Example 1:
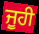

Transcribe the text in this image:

ਜੂਹੀ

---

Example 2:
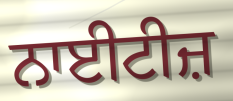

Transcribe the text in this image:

ਨਾਈਟੀਜ਼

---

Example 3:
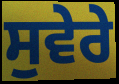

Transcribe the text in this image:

ਸੁਵੇਰੇ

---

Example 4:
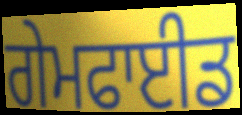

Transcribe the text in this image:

ਗੇਮਫਾਈਡ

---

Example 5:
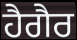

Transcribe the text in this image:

ਹੈਗੈਰ